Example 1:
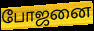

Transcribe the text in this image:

போஜனை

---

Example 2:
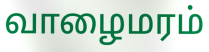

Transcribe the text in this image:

வாழைமரம்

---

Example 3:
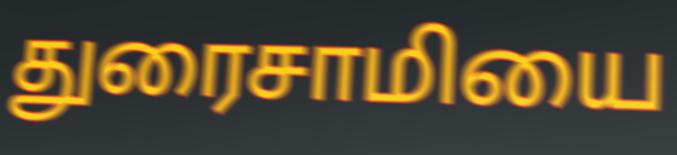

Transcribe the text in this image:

துரைசாமியை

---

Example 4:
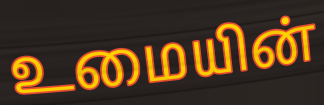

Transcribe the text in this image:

உமையின்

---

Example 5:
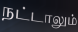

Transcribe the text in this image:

நட்டாலும்